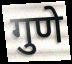
गुणे